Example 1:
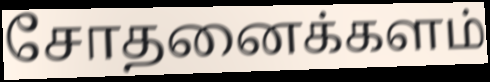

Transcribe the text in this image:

சோதனைக்களம்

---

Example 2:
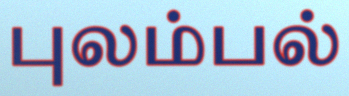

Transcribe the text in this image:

புலம்பல்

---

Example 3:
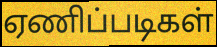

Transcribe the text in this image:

ஏணிப்படிகள்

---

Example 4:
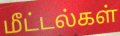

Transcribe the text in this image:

மீட்டல்கள்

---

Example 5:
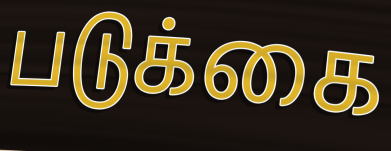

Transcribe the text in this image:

படுக்கை